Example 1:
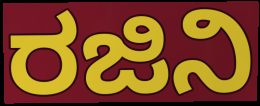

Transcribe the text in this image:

ರಜಿನಿ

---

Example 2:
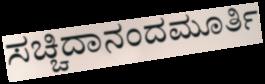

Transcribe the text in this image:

ಸಚ್ಚಿದಾನಂದಮೂರ್ತಿ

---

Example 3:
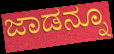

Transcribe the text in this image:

ಜಾಡನ್ನೂ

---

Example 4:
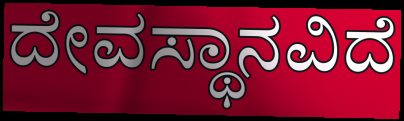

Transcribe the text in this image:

ದೇವಸ್ಥಾನವಿದೆ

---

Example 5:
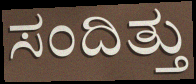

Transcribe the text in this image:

ಸಂದಿತ್ತು